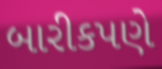
બારીકપણે